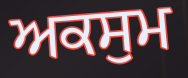
ਅਕਸੁਮ